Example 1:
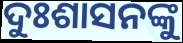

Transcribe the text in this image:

ଦୁଃଶାସନଙ୍କୁ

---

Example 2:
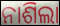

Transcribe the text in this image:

ନାଶିଲା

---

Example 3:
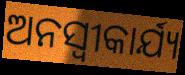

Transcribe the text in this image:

ଅନସ୍ବୀକାର୍ଯ୍ୟ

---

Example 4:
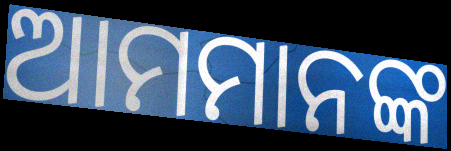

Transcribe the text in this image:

ଆମମାନଙ୍କ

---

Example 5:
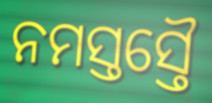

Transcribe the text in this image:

ନମସ୍ତସ୍ତୈ